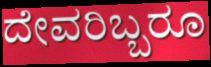
ದೇವರಿಬ್ಬರೂ